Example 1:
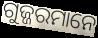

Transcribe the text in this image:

ଗୁଜ୍ଜରମାନେ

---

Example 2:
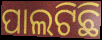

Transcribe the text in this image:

ପାଲଟିଛି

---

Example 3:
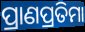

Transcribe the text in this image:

ପ୍ରାଣପ୍ରତିମା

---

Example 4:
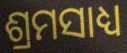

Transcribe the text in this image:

ଶ୍ରମସାଧ୍ୟ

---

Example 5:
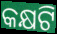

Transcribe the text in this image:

କକ୍ଷଟି